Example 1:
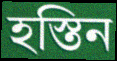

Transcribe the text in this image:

হস্তিন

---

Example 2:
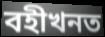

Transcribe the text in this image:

বহীখনত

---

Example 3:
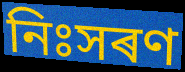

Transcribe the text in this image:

নিঃসৰণ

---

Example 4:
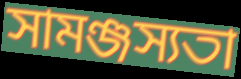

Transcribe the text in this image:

সামঞ্জস্যতা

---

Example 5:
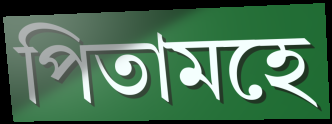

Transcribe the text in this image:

পিতামহে